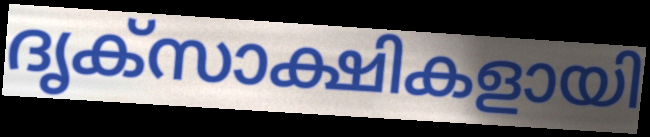
ദൃക്സാക്ഷികളായി